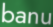
banu